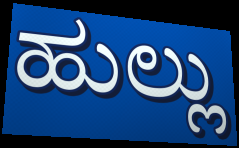
ಹುಲ್ಲು